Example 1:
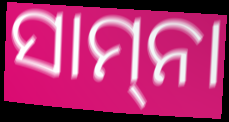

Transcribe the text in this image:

ସାମ୍‌ନା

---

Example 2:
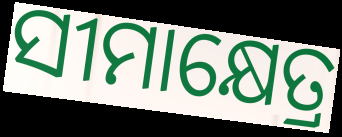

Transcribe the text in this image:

ସୀମାକ୍ଷେତ୍ର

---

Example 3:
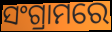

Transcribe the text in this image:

ସଂଗ୍ରାମରେ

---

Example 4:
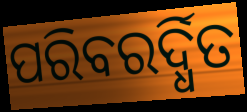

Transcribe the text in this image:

ପରିବରର୍ଦ୍ଧିତ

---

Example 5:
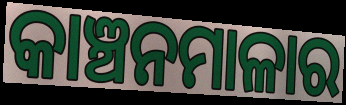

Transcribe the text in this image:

କାଞ୍ଚନମାଳାର